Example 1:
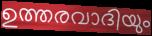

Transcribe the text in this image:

ഉത്തരവാദിയും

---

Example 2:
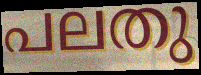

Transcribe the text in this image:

പലതു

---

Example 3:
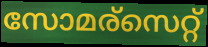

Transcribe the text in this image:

സോമര്സെറ്റ്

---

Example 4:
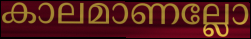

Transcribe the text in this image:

കാലമാണല്ലോ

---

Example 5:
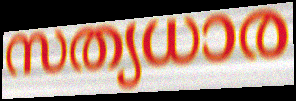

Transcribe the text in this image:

സത്യധാര